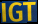
IGT